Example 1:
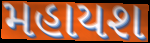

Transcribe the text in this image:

મહાયશ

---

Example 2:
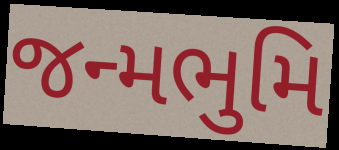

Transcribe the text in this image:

જન્મભુમિ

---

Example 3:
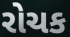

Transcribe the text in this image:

રોચક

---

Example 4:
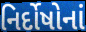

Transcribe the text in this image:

નિર્દોષોનાં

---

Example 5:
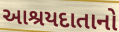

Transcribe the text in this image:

આશ્રયદાતાનો